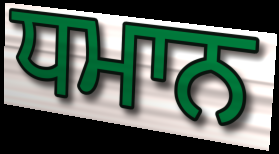
ਧਮਾਨ